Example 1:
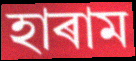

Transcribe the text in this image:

হাৰাম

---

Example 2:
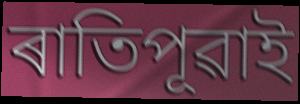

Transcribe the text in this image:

ৰাতিপূৱাই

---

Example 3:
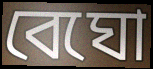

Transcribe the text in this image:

বেঘো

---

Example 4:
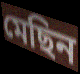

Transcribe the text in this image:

মেছিন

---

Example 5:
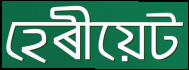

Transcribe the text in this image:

হেৰীয়েট